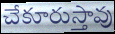
చేకూరుస్తావు